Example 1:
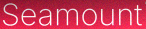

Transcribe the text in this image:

Seamount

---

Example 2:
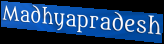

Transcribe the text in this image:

Madhyapradesh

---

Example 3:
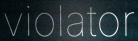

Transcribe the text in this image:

violator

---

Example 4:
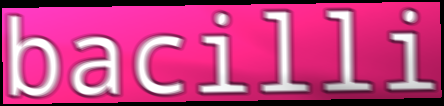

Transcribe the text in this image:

bacilli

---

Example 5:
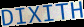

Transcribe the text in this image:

DIXITH